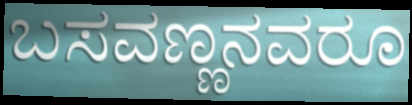
ಬಸವಣ್ಣನವರೂ